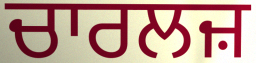
ਚਾਰਲਜ਼